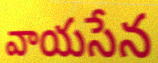
వాయసేన